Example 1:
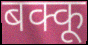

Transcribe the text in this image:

बक्कू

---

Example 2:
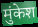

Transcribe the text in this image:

मुंकेश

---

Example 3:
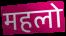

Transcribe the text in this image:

महलो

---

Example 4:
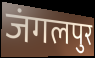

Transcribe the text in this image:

जंगलपुर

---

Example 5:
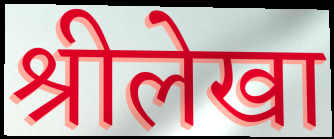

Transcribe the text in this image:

श्रीलेखा